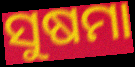
ସୁଷମା